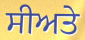
ਸੀਅਤੇ